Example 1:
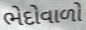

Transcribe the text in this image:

ભેદોવાળો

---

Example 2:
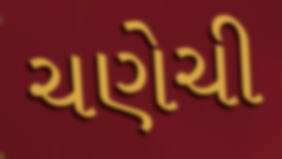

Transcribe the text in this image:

ચણેચી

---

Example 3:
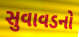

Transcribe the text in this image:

સુવાવડનો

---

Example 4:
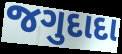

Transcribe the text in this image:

જગુદાદા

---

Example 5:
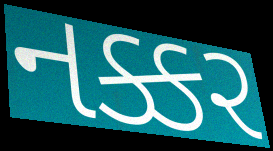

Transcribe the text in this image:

નક્કર